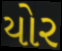
યોર